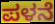
ಪಳನೆ